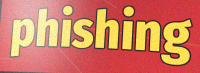
phishing